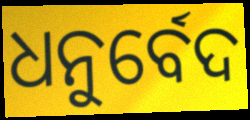
ଧନୁର୍ବେଦ